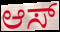
ಆಸ್